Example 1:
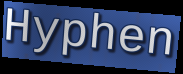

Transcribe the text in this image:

Hyphen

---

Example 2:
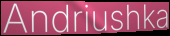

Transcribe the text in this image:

Andriushka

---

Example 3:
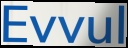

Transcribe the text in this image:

Evvul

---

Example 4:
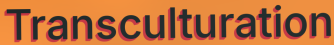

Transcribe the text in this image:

Transculturation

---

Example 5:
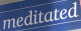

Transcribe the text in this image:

meditated